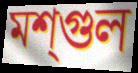
মশ্গুল